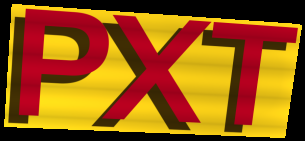
PXT